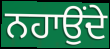
ਨਹਾਉਂਦੇ